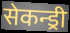
सेकन्ड्री